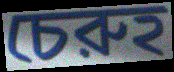
চেরুহ